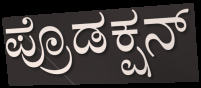
ಪ್ರೊಡಕ್ಷನ್